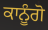
ਕਾਨੂੰਗੋ